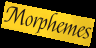
Morphemes